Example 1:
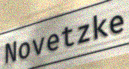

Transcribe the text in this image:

Novetzke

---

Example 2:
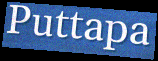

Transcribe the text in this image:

Puttapa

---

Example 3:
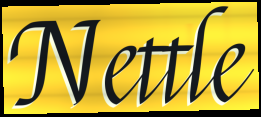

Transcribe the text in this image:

Nettle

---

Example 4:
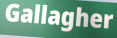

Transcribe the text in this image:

Gallagher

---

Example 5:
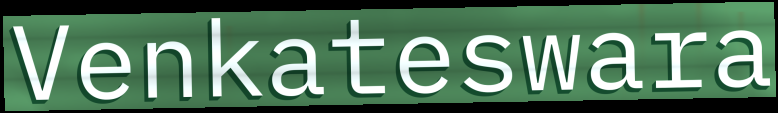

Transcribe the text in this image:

Venkateswara